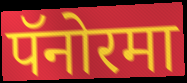
पॅनोरमा